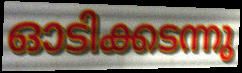
ഓടിക്കടന്നു